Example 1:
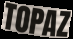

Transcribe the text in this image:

TOPAZ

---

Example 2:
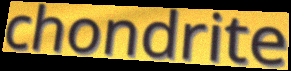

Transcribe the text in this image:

chondrite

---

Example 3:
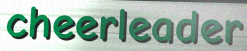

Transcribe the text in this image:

cheerleader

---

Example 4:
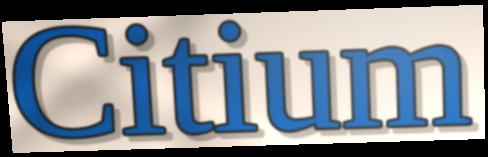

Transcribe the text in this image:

Citium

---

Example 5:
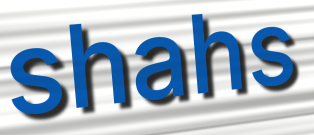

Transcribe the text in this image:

shahs